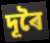
দূৰৈ